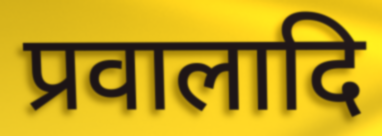
प्रवालादि